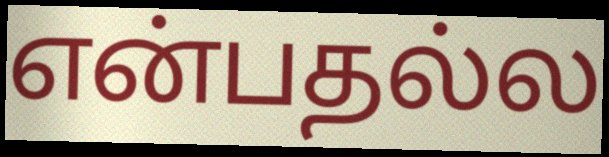
என்பதல்ல